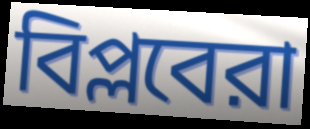
বিপ্লবেরা